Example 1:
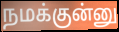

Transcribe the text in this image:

நமக்குன்னு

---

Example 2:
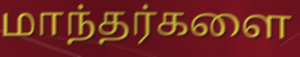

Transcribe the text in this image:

மாந்தர்களை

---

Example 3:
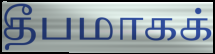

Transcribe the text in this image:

தீபமாகக்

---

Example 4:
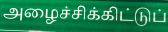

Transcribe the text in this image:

அழைச்சிக்கிட்டுப்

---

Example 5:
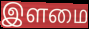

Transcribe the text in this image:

இளமை